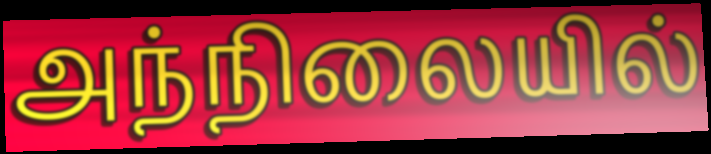
அந்நிலையில்